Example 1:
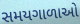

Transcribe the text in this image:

સમયગાળાઓ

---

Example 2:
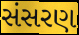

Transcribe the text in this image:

સંસરણ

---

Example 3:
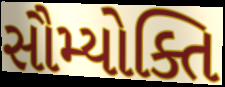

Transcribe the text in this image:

સૌમ્યોક્તિ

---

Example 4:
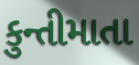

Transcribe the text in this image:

કુન્તીમાતા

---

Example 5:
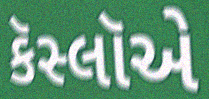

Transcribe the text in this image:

કૅસ્લૉએ